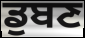
ਡੁਬਣ